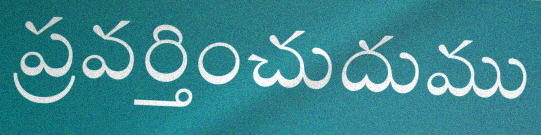
ప్రవర్తించుదుము